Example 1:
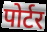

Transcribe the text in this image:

पोर्टर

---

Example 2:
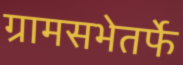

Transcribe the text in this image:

ग्रामसभेतर्फे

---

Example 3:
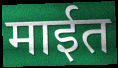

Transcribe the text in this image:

माईत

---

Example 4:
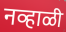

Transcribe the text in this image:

नव्हाळी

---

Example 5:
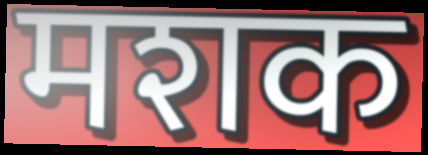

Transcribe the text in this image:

मशक